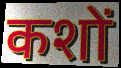
कशों